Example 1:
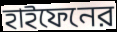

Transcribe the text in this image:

হাইফেনের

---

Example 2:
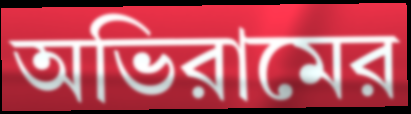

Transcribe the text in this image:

অভিরামের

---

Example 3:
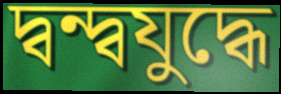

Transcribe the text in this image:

দ্বন্দ্বযুদ্ধে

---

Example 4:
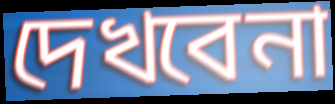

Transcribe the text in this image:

দেখবেনা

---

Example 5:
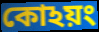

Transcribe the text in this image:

কোঽয়ং